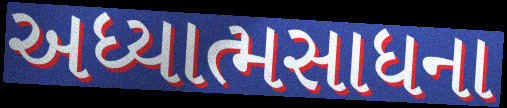
અધ્યાત્મસાધના